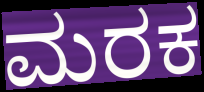
ಮರಕ